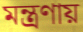
মন্ত্রণায়